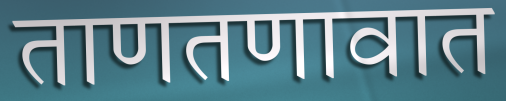
ताणतणावात